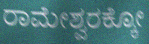
ರಾಮೇಶ್ವರಕ್ಕೋ